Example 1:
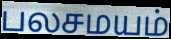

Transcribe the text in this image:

பலசமயம்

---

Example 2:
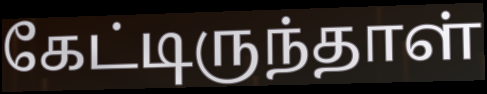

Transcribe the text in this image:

கேட்டிருந்தாள்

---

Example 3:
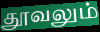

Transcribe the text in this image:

தூவலும்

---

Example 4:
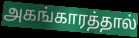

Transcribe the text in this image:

அகங்காரத்தால்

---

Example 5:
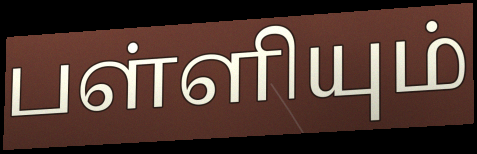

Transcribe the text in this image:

பள்ளியும்